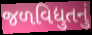
જળવિદ્યુતનું